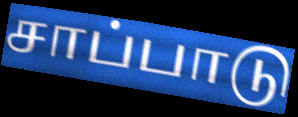
சாப்பாடு